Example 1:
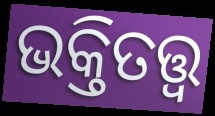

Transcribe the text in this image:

ଭକ୍ତିତତ୍ତ୍ୱ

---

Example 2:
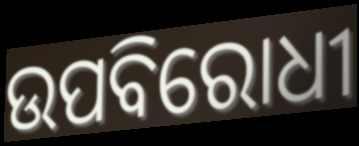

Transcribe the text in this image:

ଉପବିରୋଧୀ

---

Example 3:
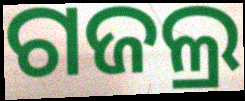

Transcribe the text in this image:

ଗଜଲ୍ର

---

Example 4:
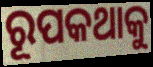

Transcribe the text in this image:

ରୂପକଥାକୁ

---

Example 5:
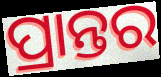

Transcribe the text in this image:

ପ୍ରାନ୍ତର